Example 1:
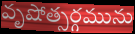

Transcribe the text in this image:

వృషోత్సర్గమును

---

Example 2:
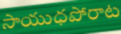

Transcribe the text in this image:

సాయుధపోరాట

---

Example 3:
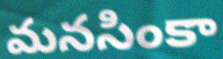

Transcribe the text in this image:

మనసింకా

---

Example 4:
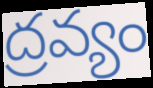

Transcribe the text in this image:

ద్రవ్యం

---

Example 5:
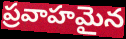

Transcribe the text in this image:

ప్రవాహమైన